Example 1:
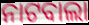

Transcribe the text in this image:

ନାଟବାଲା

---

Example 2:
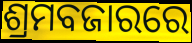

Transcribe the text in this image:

ଶ୍ରମବଜାରରେ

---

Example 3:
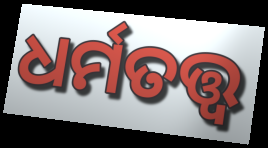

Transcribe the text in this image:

ଧର୍ମତତ୍ତ୍ଵ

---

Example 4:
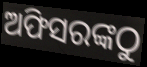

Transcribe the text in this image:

ଅଫିସରଙ୍କଠୁ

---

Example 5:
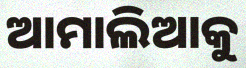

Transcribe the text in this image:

ଆମାଲିଆକୁ